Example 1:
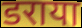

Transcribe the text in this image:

डराया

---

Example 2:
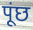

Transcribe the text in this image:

पूंछ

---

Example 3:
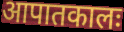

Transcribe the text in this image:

आपातकालः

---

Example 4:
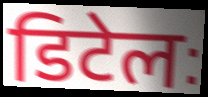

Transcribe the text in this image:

डिटेलः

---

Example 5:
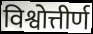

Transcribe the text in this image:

विश्वोत्तीर्ण